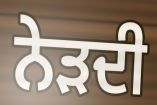
ਨੇੜਦੀ